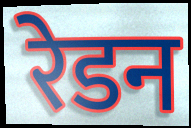
रेडन